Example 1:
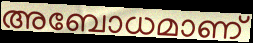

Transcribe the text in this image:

അബോധമാണ്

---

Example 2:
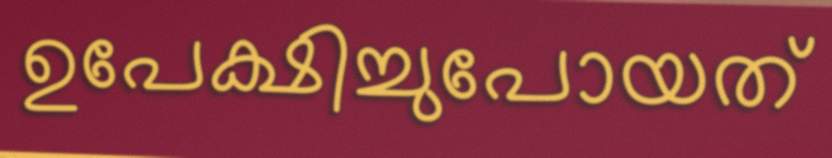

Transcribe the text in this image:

ഉപേക്ഷിച്ചുപോയത്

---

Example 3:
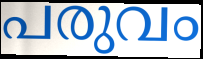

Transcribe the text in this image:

പരുവം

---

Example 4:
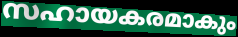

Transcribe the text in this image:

സഹായകരമാകും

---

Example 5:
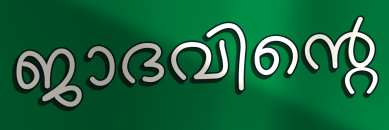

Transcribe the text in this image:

ജാദവിന്റെ